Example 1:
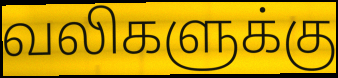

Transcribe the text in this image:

வலிகளுக்கு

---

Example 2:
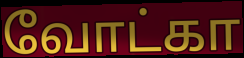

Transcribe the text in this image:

வோட்கா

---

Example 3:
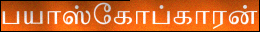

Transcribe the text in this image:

பயாஸ்கோப்காரன்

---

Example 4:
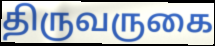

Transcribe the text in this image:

திருவருகை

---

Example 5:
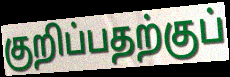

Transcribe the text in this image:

குறிப்பதற்குப்